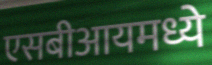
एसबीआयमध्ये